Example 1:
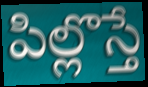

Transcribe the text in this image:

పిల్లొస్తే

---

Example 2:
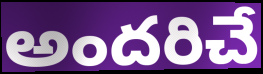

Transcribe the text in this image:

అందరిచే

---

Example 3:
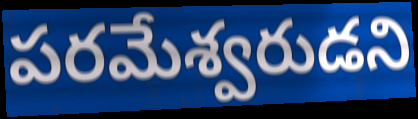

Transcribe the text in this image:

పరమేశ్వరుడని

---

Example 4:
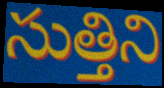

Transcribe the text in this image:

సుత్తిని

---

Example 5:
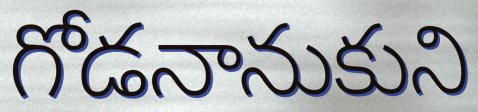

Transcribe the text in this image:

గోడనానుకుని